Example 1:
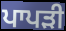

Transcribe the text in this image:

ਪਾਪੜੀ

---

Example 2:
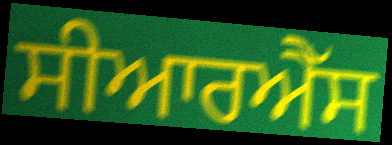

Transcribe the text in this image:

ਸੀਆਰਐੱਸ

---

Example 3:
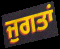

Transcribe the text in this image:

ਜੁਗਤਾਂ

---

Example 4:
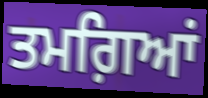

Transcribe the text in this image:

ਤਮਗ਼ਿਆਂ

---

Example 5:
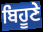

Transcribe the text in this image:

ਬਿਹੂਣੇ